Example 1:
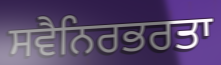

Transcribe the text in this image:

ਸਵੈਨਿਰਭਰਤਾ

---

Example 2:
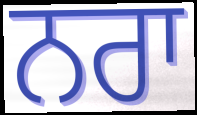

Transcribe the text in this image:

ਨਰਾ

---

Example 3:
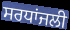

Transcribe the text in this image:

ਸਰਧਾਂਜਲੀ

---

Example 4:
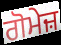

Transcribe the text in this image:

ਗੋਮੇਜ਼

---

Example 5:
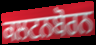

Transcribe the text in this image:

ਕਲਟਨਬੋਰਨ